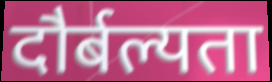
दौर्बल्यता